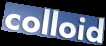
colloid